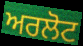
ਅਰਲੋਟ